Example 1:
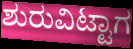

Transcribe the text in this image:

ಶುರುವಿಟ್ಟಾಗ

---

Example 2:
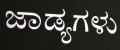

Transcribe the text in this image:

ಜಾಡ್ಯಗಳು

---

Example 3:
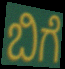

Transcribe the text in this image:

ಬಿಗೆ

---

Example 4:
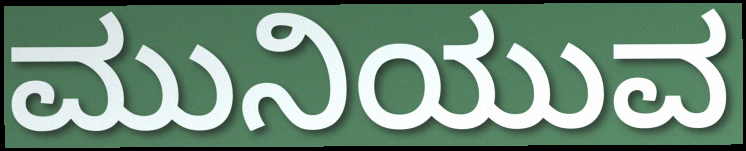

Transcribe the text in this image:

ಮುನಿಯುವ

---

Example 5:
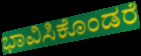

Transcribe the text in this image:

ಭಾವಿಸಿಕೊಂಡರೆ